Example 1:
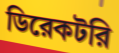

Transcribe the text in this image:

ডিরেকটরি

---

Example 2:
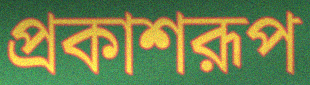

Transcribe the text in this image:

প্রকাশরূপ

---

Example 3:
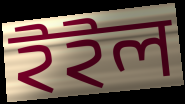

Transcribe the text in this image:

ইইল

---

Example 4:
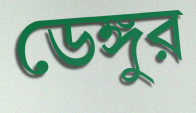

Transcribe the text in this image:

ডেঙ্গুর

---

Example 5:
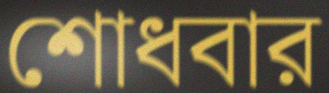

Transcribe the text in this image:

শোধবার